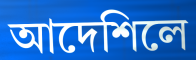
আদেশিলে